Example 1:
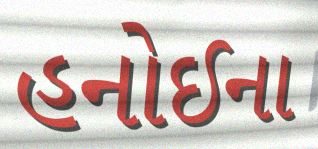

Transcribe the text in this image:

હનોઈના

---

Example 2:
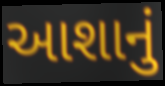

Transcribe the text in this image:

આશાનું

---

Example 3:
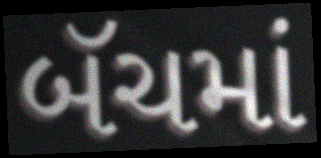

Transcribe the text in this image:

બૅચમાં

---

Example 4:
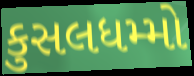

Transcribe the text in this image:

કુસલધમ્મો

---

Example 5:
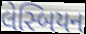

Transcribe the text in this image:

લેસ્બિયન